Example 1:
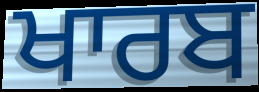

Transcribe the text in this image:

ਖਾਰਬ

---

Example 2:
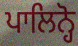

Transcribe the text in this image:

ਪਾਲਿਨ੍ਹੋ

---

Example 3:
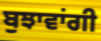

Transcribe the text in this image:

ਬੁਝਾਵਾਂਗੀ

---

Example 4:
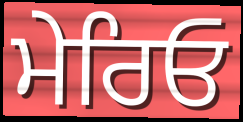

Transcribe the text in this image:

ਮੇਰਿਓ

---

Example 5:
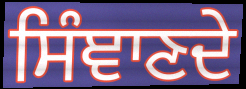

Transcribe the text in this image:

ਸਿੰਞਾਣਦੇ